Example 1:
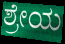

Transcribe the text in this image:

ಶ್ರೇಯ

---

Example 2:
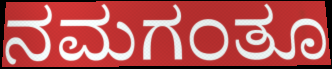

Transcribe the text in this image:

ನಮಗಂತೂ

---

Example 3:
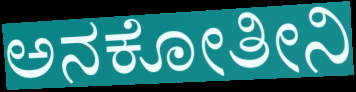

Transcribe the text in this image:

ಅನಕೋತೀನಿ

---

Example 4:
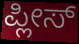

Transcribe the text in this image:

ಪ್ಲೀಸ್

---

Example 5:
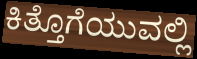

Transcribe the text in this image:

ಕಿತ್ತೊಗೆಯುವಲ್ಲಿ